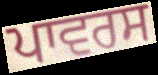
ਪਾਵਰਸ